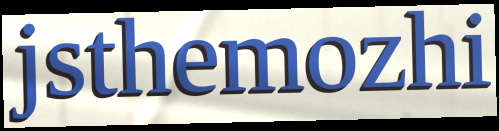
jsthemozhi